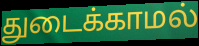
துடைக்காமல்